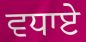
ਵਧਾਏ